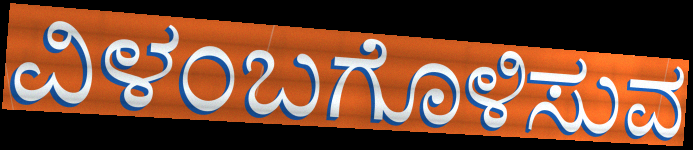
ವಿಳಂಬಗೊಳಿಸುವ